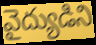
వైద్యుడిని